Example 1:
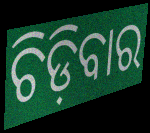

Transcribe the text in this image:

ଚିଡ଼ିବାର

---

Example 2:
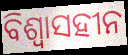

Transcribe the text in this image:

ବିଶ୍ୱାସହୀନ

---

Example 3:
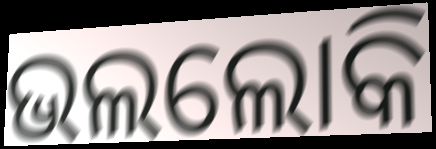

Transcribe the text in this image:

ଭଲଲୋକି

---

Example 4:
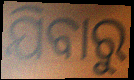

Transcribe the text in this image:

ଯିବାରୁ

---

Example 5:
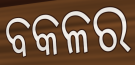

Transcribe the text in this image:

ବକଳର